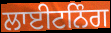
ਲਾਈਟਨਿੰਗ